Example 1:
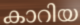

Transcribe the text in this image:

കാറിയ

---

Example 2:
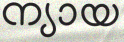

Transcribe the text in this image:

ന്യായ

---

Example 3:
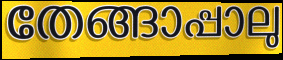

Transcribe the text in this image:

തേങ്ങാപ്പാലു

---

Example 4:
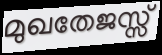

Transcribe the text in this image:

മുഖതേജസ്സ്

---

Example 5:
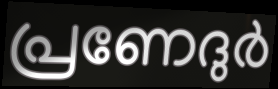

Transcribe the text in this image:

പ്രണേദുർ